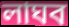
লাঘব